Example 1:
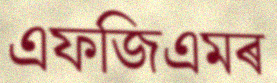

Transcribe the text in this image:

এফজিএমৰ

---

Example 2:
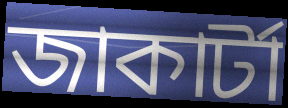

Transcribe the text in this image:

জাকাৰ্টা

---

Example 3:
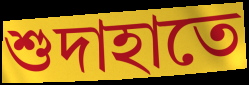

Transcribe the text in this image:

শুদাহাতে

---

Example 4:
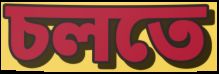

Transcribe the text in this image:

চলতে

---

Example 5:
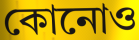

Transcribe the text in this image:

কোনোও